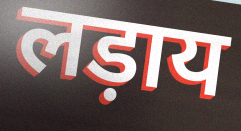
लड़ाय